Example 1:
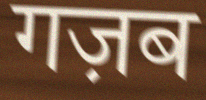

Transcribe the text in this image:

गज़ब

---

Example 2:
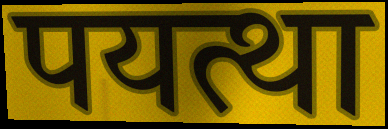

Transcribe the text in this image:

पयत्था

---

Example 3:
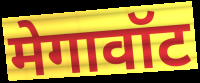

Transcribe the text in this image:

मेगावॉट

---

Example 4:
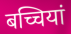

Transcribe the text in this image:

बच्चियां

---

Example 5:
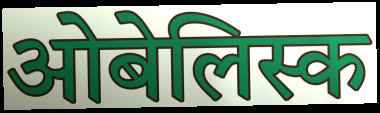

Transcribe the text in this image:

ओबेलिस्क